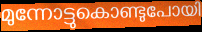
മുന്നോട്ടുകൊണ്ടുപോയി